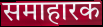
समाहारक